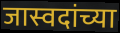
जास्वदांच्या